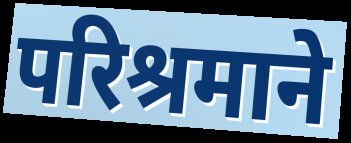
परिश्रमाने